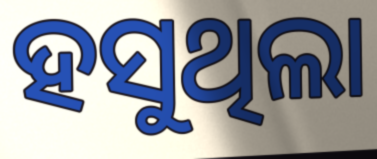
ହସୁଥିଲା